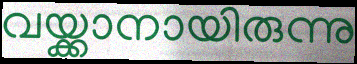
വയ്ക്കാനായിരുന്നു